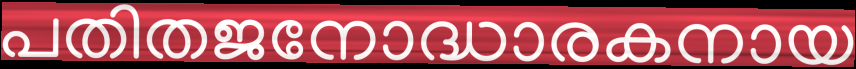
പതിതജനോദ്ധാരകനായ